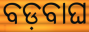
ବଡ଼ବାଘ